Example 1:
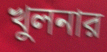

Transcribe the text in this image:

খুলনার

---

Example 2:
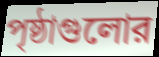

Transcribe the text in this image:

পৃষ্ঠাগুলোর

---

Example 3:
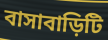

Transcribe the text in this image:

বাসাবাড়িটি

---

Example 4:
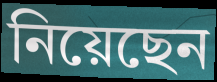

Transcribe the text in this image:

নিয়েছেন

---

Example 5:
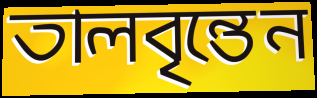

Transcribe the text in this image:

তালবৃন্তেন